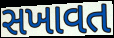
સખાવત